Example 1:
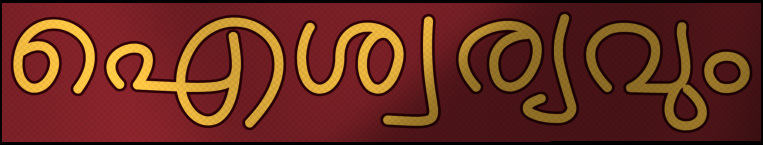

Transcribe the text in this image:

ഐശ്വര്യവും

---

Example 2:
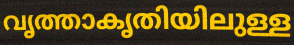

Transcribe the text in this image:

വൃത്താകൃതിയിലുള്ള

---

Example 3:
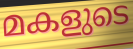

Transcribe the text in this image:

മകളുടെ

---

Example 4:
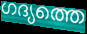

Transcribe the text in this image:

ഗദ്യത്തെ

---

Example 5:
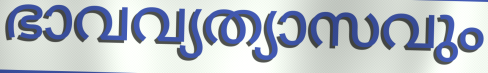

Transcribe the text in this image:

ഭാവവ്യത്യാസവും